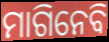
ମାଗିନେବି